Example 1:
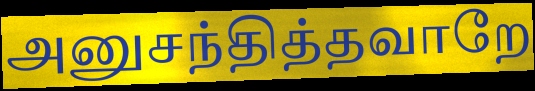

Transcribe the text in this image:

அனுசந்தித்தவாறே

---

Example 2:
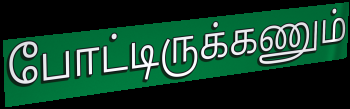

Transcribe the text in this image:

போட்டிருக்கணும்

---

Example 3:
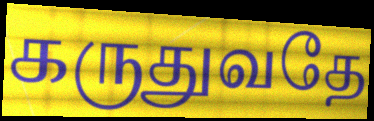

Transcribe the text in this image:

கருதுவதே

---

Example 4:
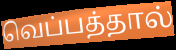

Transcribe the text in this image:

வெப்பத்தால்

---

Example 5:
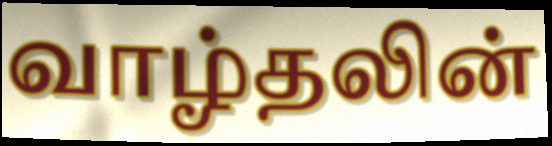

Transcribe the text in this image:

வாழ்தலின்